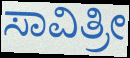
ಸಾವಿತ್ರೀ